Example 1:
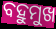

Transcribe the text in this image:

ବହୁମୁଖ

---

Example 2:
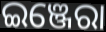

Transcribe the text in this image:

ଇଞ୍ଜେରା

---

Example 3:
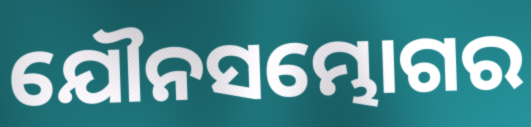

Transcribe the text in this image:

ଯୌନସମ୍ଭୋଗର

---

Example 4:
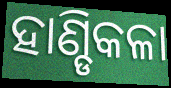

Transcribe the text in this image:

ହାଣ୍ଡିକଳା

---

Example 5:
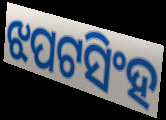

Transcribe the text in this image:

ଝପଟସିଂହ